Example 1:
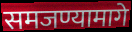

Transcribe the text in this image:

समजण्यामागे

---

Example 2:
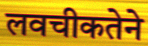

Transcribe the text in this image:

लवचीकतेने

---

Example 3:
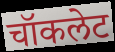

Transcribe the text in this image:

चॉकलेट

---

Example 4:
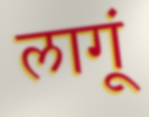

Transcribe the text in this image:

लागूं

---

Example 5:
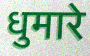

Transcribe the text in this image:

धुमारे